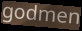
godmen